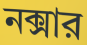
নক্সার